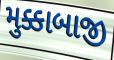
મુક્કાબાજી